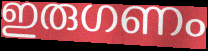
ഇരുഗണം